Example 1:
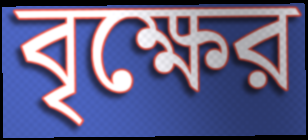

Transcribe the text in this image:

বৃক্ষের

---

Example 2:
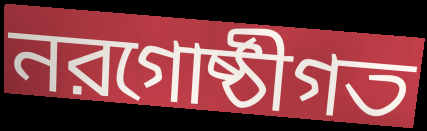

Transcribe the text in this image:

নরগোষ্ঠীগত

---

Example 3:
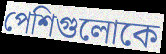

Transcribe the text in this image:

পেশিগুলোকে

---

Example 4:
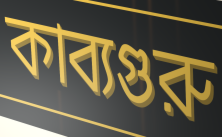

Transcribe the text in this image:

কাব্যগুরু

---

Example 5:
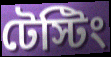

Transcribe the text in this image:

টেস্টিং